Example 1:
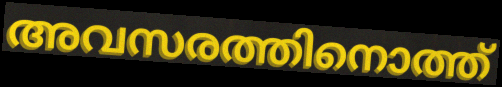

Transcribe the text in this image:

അവസരത്തിനൊത്ത്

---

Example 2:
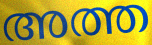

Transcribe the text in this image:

അത്ത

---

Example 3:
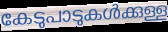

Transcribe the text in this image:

കേടുപാടുകൾക്കുള്ള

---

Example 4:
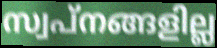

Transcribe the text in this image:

സ്വപ്നങ്ങളില്ല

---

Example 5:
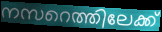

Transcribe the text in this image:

നസറെത്തിലേക്ക്